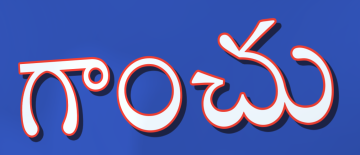
గాంచు